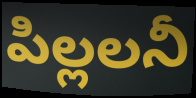
పిల్లలనీ